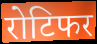
रोटिफर